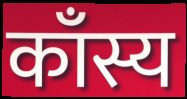
काँस्य